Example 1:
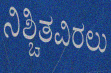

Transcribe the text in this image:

ನಿಶ್ಚಿತವಿರಲು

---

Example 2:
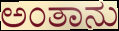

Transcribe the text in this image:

ಅಂತಾನು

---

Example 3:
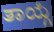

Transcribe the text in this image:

ತಾಯ್ಗೆ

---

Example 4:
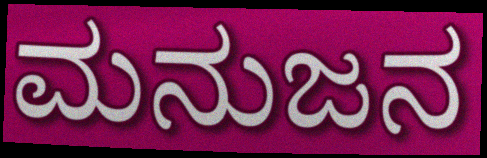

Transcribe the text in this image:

ಮನುಜನ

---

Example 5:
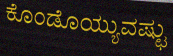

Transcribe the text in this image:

ಕೊಂಡೊಯ್ಯುವಷ್ಟು